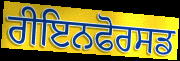
ਰੀਇਨਫੋਰਸਡ